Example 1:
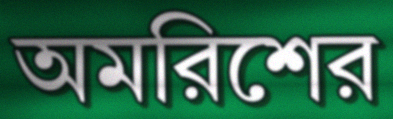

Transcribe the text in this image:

অমরিশের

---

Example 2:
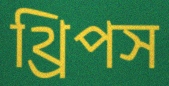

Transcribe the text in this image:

থ্রিপস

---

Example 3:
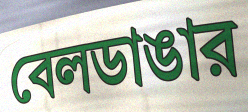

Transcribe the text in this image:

বেলডাঙার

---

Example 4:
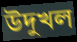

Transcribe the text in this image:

উদুখল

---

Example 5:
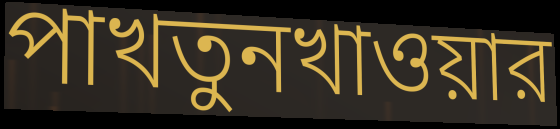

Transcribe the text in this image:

পাখতুনখাওয়ার